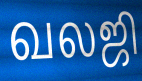
வலஜி